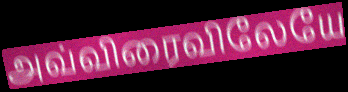
அவ்விரைவிலேயே